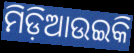
ମିଡ଼ିଆଉଇକି